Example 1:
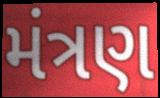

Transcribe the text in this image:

મંત્રણ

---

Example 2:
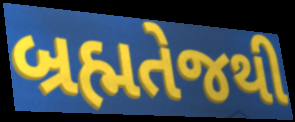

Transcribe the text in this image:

બ્રહ્મતેજથી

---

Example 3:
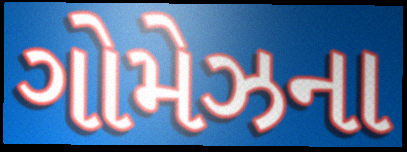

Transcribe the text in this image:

ગોમેઝના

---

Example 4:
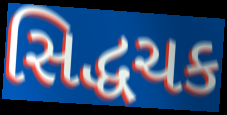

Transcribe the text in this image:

સિદ્ધચક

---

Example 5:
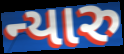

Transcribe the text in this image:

ન્યારુ